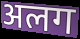
अलग